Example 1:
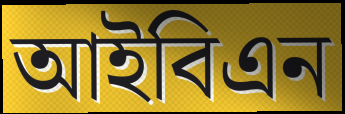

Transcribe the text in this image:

আইবিএন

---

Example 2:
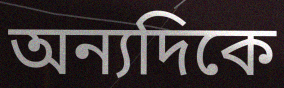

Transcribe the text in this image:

অন্যদিকে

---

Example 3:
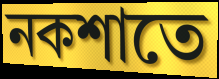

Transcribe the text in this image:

নকশাতে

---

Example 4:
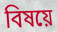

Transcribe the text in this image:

বিষয়ে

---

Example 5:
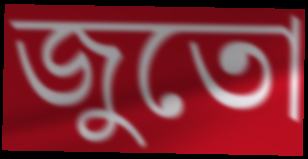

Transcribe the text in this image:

জুতো